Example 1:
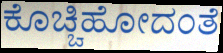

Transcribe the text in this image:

ಕೊಚ್ಚಿಹೋದಂತೆ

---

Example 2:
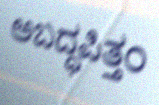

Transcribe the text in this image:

ಅಬದ್ಧಪಿತ್ತಂ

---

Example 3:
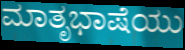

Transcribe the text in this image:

ಮಾತೃಭಾಷೆಯು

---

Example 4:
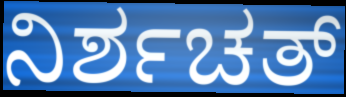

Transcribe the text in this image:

ನಿರ್ಶಚತ್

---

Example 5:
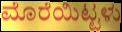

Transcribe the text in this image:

ಮೊರೆಯಿಟ್ಟಳು